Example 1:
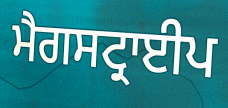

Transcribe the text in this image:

ਮੈਗਸਟ੍ਰਾਈਪ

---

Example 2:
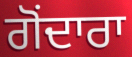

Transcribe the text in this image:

ਗੋਂਦਾਰਾ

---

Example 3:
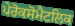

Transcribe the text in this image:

ਪੇਰੋਕਸੋਮੈਟਲਿਕ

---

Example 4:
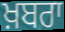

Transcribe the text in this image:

ਖ਼ਬਰਾ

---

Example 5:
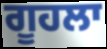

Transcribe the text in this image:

ਗੂਹਲਾ